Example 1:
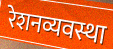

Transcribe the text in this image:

रेशनव्यवस्था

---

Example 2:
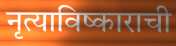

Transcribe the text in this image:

नृत्याविष्काराची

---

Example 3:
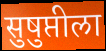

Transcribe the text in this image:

सुषुप्तीला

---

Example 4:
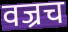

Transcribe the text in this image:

वज्रच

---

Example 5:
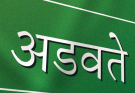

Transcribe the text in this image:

अडवते